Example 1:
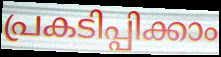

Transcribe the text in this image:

പ്രകടിപ്പിക്കാം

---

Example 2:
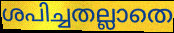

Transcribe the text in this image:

ശപിച്ചതല്ലാതെ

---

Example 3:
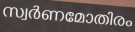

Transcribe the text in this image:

സ്വർണമോതിരം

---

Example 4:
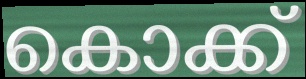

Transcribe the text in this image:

കൊക്ക്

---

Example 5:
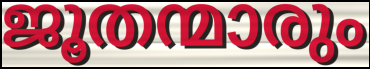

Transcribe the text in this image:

ജൂതന്മാരും